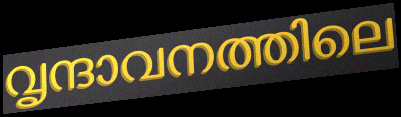
വൃന്ദാവനത്തിലെ